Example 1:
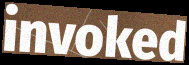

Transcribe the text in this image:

invoked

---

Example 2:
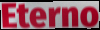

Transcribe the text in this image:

Eterno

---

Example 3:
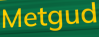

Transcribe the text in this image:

Metgud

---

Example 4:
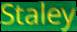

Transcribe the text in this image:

Staley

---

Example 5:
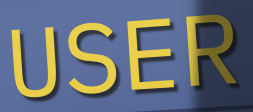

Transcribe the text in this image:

USER